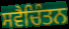
ਸਵੈਚਿੰਤਨ